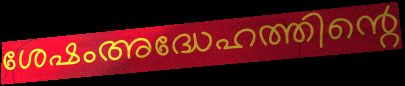
ശേഷംഅദ്ധേഹത്തിന്റെ